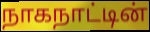
நாகநாட்டின்